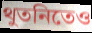
থুতনিতেও